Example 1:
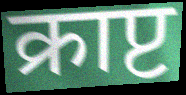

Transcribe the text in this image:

क्राप्ट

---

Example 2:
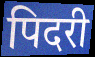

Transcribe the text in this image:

पिदरी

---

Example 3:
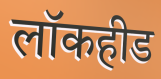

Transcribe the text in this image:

लॉकहीड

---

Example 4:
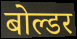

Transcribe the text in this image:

बोल्डर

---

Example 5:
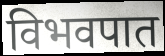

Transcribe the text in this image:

विभवपात